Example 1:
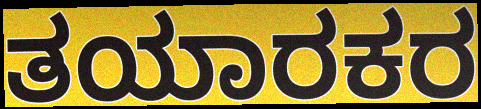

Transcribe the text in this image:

ತಯಾರಕರ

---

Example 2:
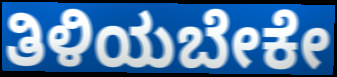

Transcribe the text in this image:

ತಿಳಿಯಬೇಕೇ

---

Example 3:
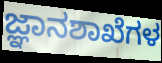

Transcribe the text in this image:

ಜ್ಞಾನಶಾಖೆಗಳ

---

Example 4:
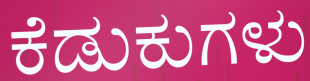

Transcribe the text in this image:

ಕೆಡುಕುಗಳು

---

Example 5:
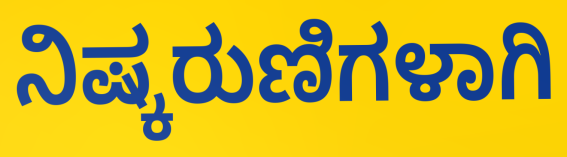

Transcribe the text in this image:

ನಿಷ್ಕರುಣಿಗಳಾಗಿ